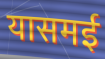
यासमई